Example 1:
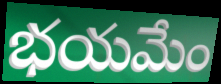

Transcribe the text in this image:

భయమేం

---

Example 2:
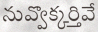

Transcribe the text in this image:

నువ్వొక్కర్తివే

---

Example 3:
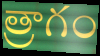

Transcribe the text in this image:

త్రాగం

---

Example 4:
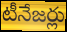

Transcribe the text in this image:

టీనేజర్లు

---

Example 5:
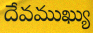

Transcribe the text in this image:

దేవముఖ్యు